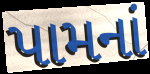
પામનાં